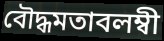
বৌদ্ধমতাবলম্বী